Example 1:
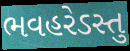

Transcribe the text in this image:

ભવહરેઽસ્તુ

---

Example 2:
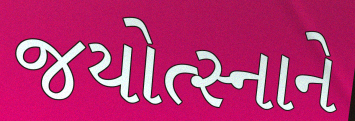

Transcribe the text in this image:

જયોત્સ્નાને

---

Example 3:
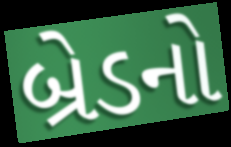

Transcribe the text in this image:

બ્રેડનો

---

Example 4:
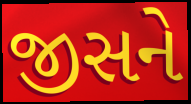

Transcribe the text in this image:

જીસને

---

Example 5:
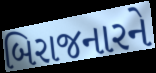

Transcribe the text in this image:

બિરાજનારને